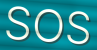
SOS